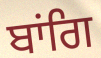
ਬਾਂਗਿ